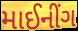
માઈનીંગ